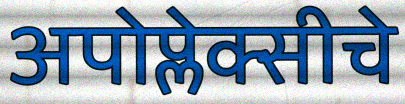
अपोप्लेक्सीचे